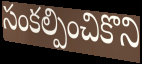
సంకల్పించికొని